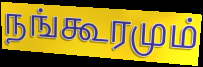
நங்கூரமும்